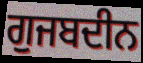
ਗੁਜਬਦੀਨ